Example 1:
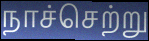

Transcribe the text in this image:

நாச்செற்று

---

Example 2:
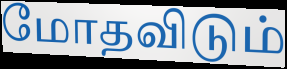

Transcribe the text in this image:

மோதவிடும்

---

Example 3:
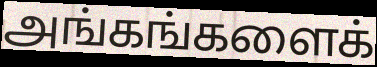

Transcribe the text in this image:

அங்கங்களைக்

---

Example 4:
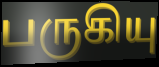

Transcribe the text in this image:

பருகியு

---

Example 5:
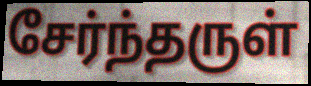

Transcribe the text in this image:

சேர்ந்தருள்